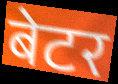
बेटर